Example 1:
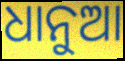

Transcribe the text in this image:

ଧାନୁଆ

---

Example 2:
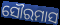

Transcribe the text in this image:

ସୌରମାସ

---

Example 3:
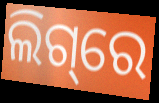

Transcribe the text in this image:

ଲିଗ୍‌ରେ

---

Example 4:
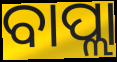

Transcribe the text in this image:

ବାପ୍ଲା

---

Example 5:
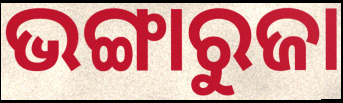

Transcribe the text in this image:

ଭଙ୍ଗାରୁଜା